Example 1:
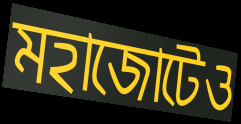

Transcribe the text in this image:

মহাজোটেও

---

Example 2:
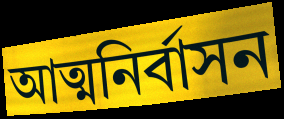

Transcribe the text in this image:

আত্মনির্বাসন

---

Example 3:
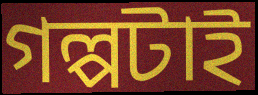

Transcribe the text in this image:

গল্পটাই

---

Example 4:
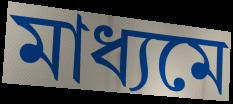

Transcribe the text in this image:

মাধ্যমে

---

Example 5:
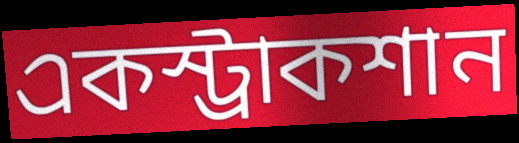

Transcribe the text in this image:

একস্ট্রাকশান